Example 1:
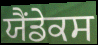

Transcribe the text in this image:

ਯੈਂਡੇਕਸ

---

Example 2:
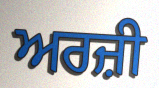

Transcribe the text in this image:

ਅਰਜ਼ੀ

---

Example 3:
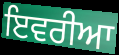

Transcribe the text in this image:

ਇਵਰੀਆ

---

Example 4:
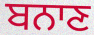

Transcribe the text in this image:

ਬਨਾਣ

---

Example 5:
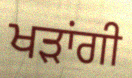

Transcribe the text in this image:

ਖੜਾਂਗੀ